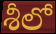
శీలో